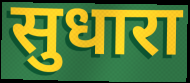
सुधारा